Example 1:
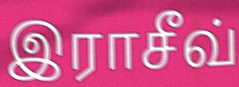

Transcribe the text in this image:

இராசீவ்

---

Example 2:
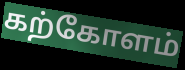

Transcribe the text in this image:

கற்கோளம்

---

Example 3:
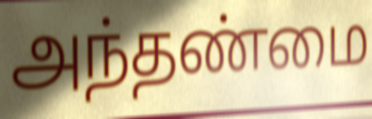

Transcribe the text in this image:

அந்தண்மை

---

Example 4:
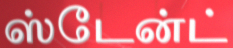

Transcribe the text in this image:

ஸ்டேன்ட்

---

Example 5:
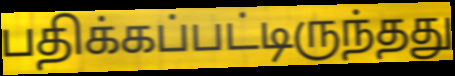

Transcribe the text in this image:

பதிக்கப்பட்டிருந்தது